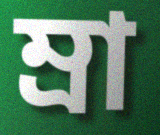
ম্রা